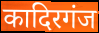
कादिरगंज